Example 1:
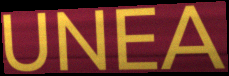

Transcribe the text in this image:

UNEA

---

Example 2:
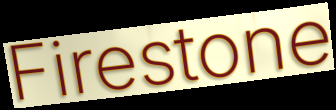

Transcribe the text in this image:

Firestone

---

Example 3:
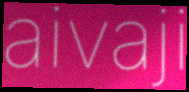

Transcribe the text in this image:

aivaji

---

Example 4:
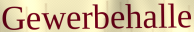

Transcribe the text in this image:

Gewerbehalle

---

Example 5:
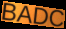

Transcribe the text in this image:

BADC